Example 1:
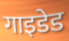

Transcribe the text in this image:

गाइडेड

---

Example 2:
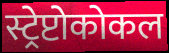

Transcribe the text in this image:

स्ट्रेप्टोकोकल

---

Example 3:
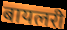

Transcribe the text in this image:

बायलरी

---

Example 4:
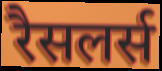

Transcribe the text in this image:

रैसलर्स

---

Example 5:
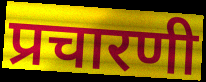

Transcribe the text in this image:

प्रचारणी